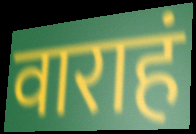
वाराहं